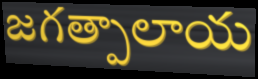
జగత్పాలాయ